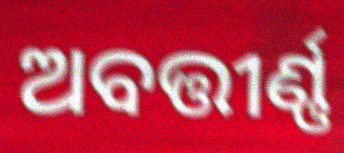
ଅବତ୍ତୀର୍ଣ୍ଣ